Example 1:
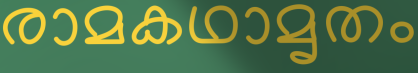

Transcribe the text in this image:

രാമകഥാമൃതം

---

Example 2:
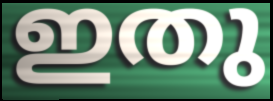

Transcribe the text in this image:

ഇതു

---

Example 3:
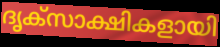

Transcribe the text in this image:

ദൃക്സാക്ഷികളായി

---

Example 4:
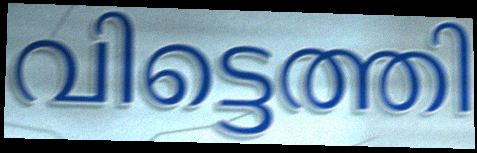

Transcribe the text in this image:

വിട്ടെത്തി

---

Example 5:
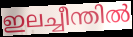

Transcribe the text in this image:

ഇലച്ചീന്തിൽ